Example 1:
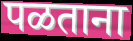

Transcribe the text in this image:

पळताना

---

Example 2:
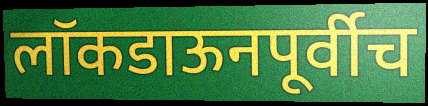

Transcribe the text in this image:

लॉकडाऊनपूर्वीच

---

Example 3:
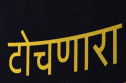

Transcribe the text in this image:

टोचणारा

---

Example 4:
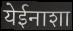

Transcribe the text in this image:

येईनाशा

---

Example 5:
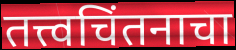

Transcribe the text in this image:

तत्त्वचिंतनाचा